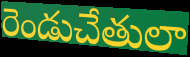
రెండుచేతులా